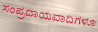
ಸಂಪ್ರದಾಯವಾದಿಗಳೂ